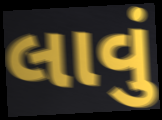
લાવું